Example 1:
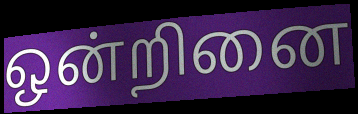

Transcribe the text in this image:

ஒன்றினை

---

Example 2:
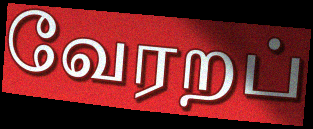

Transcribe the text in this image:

வேரறப்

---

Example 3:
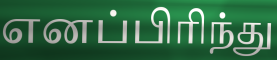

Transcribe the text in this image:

எனப்பிரிந்து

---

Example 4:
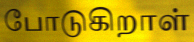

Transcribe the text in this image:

போடுகிறாள்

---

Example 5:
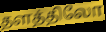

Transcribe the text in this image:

தளத்திலோ